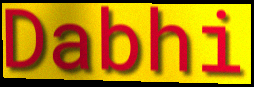
Dabhi